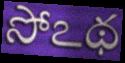
సోఽథ